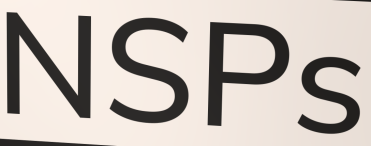
NSPs